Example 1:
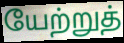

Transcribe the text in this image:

யேற்றுத்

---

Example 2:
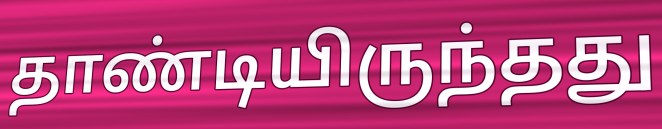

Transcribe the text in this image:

தாண்டியிருந்தது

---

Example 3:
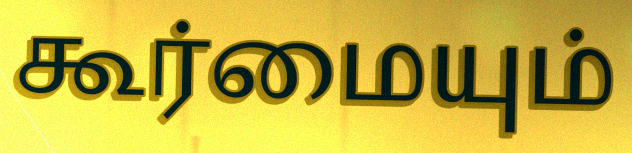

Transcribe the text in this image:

கூர்மையும்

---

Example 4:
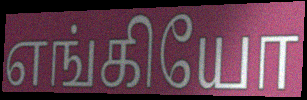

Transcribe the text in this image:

எங்கியோ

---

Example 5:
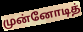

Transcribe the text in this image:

முன்னோடித்